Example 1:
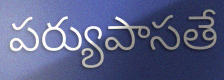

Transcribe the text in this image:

పర్యుపాసతే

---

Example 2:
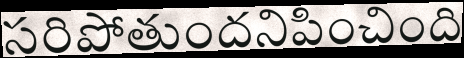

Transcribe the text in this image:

సరిపోతుందనిపించింది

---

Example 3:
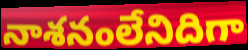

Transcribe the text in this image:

నాశనంలేనిదిగా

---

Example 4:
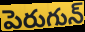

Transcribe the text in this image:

పెరుగున్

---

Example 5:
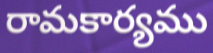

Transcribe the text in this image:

రామకార్యము